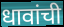
धावांची